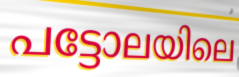
പട്ടോലയിലെ